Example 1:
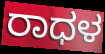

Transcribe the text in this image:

ರಾಧಳ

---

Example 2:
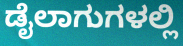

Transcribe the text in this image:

ಡೈಲಾಗುಗಳಲ್ಲಿ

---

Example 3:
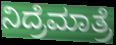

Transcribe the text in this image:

ನಿದ್ರೆಮಾತ್ರೆ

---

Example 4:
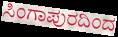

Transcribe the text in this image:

ಸಿಂಗಾಪುರದಿಂದ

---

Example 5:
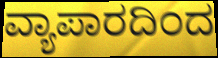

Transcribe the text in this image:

ವ್ಯಾಪಾರದಿಂದ